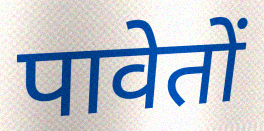
पावेतों